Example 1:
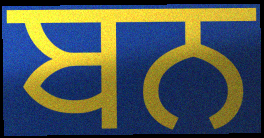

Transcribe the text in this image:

ਬਨ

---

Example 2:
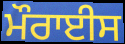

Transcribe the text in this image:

ਮੌਰਾਈਸ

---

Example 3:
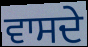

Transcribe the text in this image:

ਵਾਸਦੇ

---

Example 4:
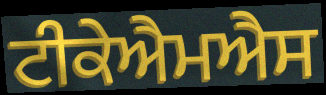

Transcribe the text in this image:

ਟੀਕੇਐਮਐਸ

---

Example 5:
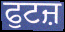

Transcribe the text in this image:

ਫੁਟਜ਼